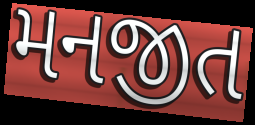
મનજીત